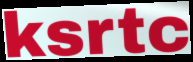
ksrtc